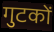
गुटकों